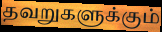
தவறுகளுக்கும்